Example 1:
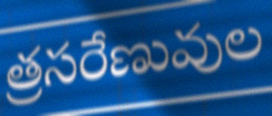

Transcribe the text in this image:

త్రసరేణువుల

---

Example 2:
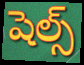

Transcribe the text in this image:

షెల్స్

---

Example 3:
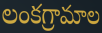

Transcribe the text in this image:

లంకగ్రామాల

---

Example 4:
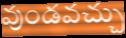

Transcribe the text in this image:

వుండవచ్చు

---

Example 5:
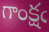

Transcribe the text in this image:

గాంక్షఁ